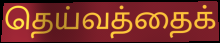
தெய்வத்தைக்